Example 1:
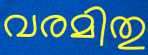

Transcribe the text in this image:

വരമിതു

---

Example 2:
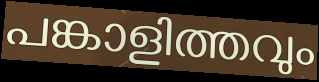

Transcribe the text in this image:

പങ്കാളിത്തവും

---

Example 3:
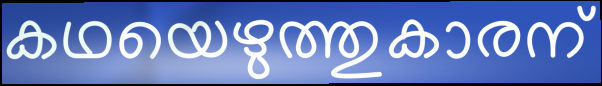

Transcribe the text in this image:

കഥയെഴുത്തുകാരന്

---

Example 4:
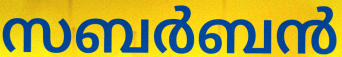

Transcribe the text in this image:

സബർബൻ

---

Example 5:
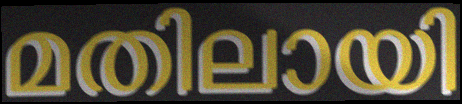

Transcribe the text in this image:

മതിലായി